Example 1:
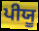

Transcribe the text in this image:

ਪੀਯੂ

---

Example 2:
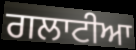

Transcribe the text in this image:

ਗਲਾਟੀਆ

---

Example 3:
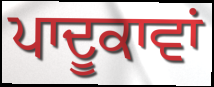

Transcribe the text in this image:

ਪਾਦੂਕਾਵਾਂ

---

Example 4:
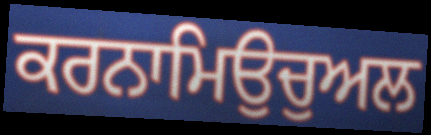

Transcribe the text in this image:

ਕਰਨਾਮਿਉਚੁਅਲ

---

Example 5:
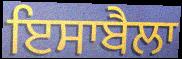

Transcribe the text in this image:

ਇਸਾਬੈਲਾ